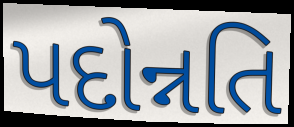
પદોન્નતિ